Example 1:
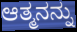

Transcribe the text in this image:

ಆತ್ಮನನ್ನು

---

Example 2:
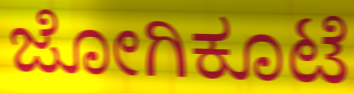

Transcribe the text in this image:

ಜೋಗಿಕೂಟೆ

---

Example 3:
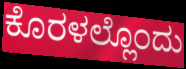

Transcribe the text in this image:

ಕೊರಳಲ್ಲೊಂದು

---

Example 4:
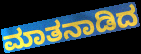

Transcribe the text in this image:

ಮಾತನಾಡಿದ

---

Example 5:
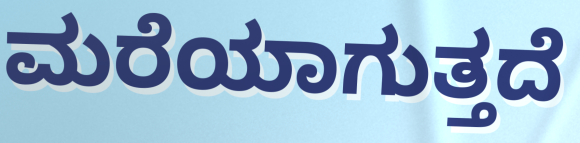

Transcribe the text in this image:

ಮರೆಯಾಗುತ್ತದೆ